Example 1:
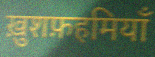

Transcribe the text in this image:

ख़ुशफ़हमियाँ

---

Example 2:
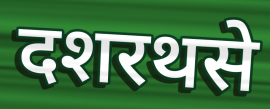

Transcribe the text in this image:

दशरथसे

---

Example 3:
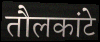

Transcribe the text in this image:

तौलकांटे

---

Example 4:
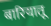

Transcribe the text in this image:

बारियातू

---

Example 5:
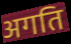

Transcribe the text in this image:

अगति